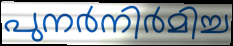
പുനർനിർമിച്ച